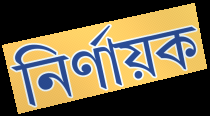
নির্ণায়ক